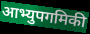
आभ्युपगमिकी